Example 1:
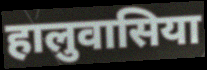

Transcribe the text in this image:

हालुवासिया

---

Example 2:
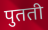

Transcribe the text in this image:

पुतती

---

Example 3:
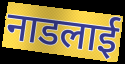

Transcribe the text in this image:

नाडलाई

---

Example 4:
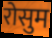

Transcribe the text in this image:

रोसुम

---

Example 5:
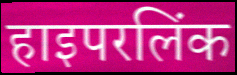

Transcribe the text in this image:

हाइपरलिंक